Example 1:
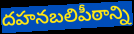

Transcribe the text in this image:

దహనబలిపీఠాన్ని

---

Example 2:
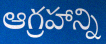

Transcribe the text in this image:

ఆగ్రహాన్ని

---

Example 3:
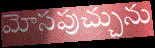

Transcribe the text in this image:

మోసపుచ్చును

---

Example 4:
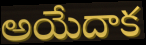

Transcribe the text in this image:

అయేదాక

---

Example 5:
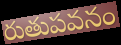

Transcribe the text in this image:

రుతుపవనం